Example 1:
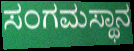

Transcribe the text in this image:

ಸಂಗಮಸ್ಥಾನ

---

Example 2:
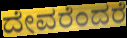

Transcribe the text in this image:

ದೇವರೆಂದರೆ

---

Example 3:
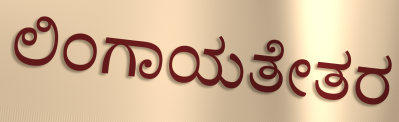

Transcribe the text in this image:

ಲಿಂಗಾಯತೇತರ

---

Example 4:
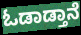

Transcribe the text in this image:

ಓಡಾಡ್ತಾನೆ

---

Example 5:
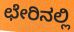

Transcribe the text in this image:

ಛೇರಿನಲ್ಲಿ